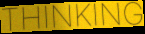
THINKING